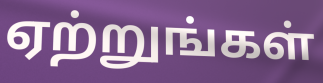
ஏற்றுங்கள்